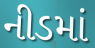
નીડમાં